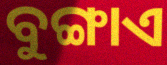
ବୁଙ୍ଗାଏ